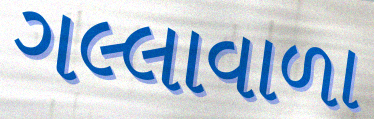
ગલ્લાવાળા